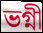
ভগ্নী